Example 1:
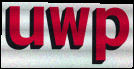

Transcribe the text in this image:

uwp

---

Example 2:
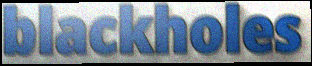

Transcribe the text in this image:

blackholes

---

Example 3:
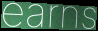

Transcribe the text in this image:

earns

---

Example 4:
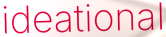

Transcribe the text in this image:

ideational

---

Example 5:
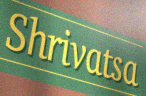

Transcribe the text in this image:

Shrivatsa